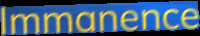
Immanence